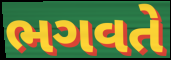
ભગવતે